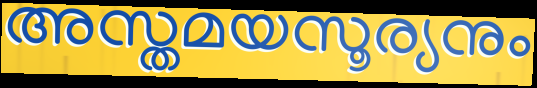
അസ്തമയസൂര്യനും